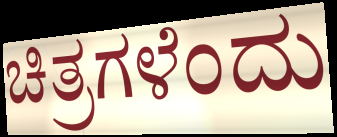
ಚಿತ್ರಗಳೆಂದು